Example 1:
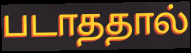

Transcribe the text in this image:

படாததால்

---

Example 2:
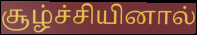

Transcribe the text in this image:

சூழ்ச்சியினால்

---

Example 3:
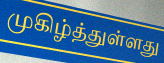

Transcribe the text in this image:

முகிழ்த்துள்ளது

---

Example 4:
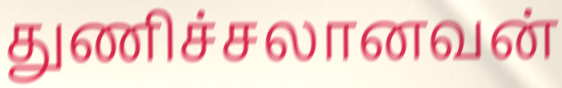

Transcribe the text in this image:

துணிச்சலானவன்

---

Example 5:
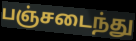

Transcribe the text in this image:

பஞ்சடைந்து